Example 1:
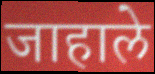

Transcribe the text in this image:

जाहाले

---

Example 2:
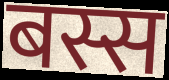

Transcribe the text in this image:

बस्स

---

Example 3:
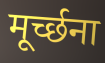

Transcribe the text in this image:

मूर्च्छना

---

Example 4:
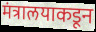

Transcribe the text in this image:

मंत्रालयाकडून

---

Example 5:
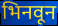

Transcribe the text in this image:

भिनवून